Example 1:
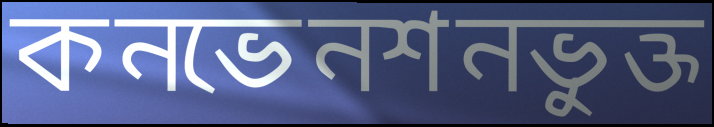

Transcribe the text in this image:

কনভেনশনভুক্ত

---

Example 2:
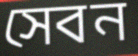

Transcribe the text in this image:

সেবন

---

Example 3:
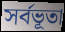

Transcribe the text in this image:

সর্বভূতা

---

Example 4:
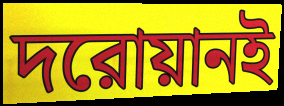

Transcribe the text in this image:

দরোয়ানই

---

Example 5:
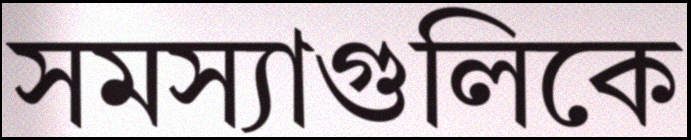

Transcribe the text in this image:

সমস্যাগুলিকে